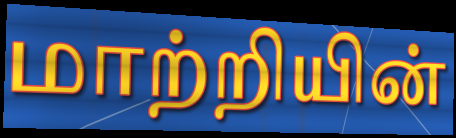
மாற்றியின்